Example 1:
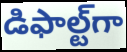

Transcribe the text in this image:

డిఫాల్ట్‌గా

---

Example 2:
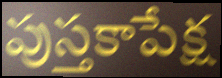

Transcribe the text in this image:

పుస్తకాపేక్ష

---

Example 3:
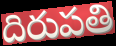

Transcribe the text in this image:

దిరుపతి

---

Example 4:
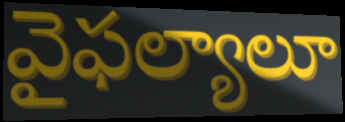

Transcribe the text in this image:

వైఫల్యాలూ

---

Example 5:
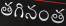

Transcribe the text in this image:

తగినంత